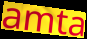
amta